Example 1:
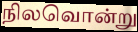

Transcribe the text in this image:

நிலவொன்று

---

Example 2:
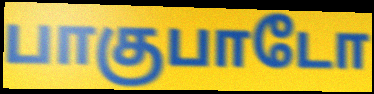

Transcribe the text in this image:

பாகுபாடோ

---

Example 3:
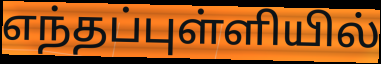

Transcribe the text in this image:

எந்தப்புள்ளியில்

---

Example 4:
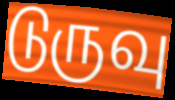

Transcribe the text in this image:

டுருவு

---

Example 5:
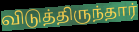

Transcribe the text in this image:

விடுத்திருந்தார்